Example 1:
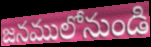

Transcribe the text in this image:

జనములోనుండి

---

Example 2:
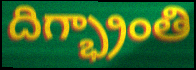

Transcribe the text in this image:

దిగ్భ్రాంతి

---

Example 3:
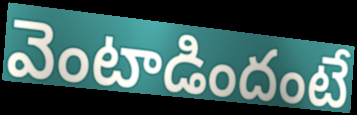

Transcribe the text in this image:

వెంటాడిందంటే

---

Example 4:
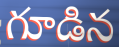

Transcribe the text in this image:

గూడిన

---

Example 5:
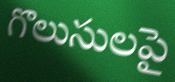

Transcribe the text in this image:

గొలుసులపై